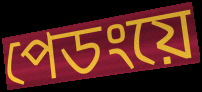
পেডংয়ে